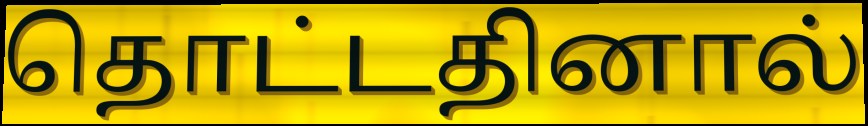
தொட்டதினால்